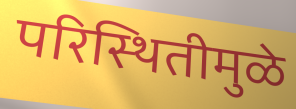
परिस्थितीमुळे